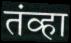
तंव्हा